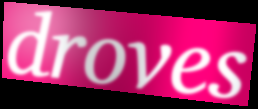
droves